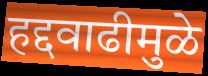
हद्दवाढीमुळे